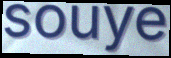
souye